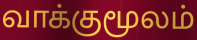
வாக்குமூலம்